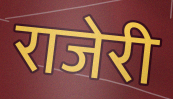
राजेरी